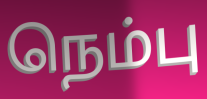
நெம்பு